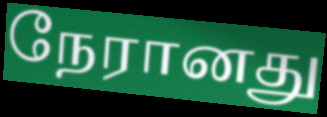
நேரானது